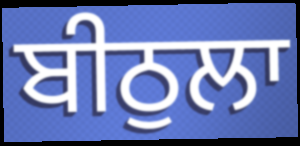
ਬੀਠੁਲਾ